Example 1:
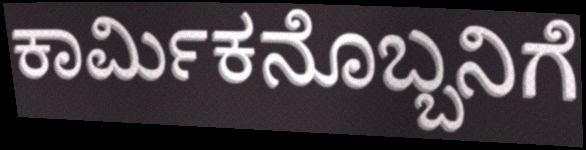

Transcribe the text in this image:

ಕಾರ್ಮಿಕನೊಬ್ಬನಿಗೆ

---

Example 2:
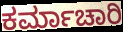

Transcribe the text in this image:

ಕರ್ಮಾಚಾರಿ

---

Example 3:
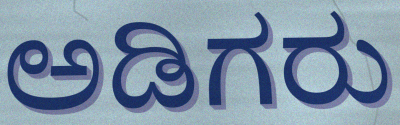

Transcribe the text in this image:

ಅಡಿಗರು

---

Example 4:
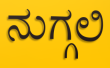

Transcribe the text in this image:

ನುಗ್ಗಲಿ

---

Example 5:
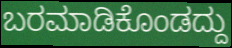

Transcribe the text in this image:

ಬರಮಾಡಿಕೊಂಡದ್ದು